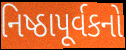
નિષ્ઠાપૂર્વકનો